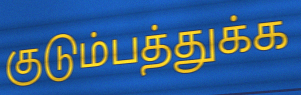
குடும்பத்துக்க